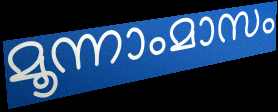
മൂന്നാംമാസം